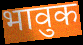
भावुक